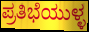
ಪ್ರತಿಭೆಯುಳ್ಳ